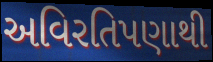
અવિરતિપણાથી